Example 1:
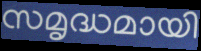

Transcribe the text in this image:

സമൃദ്ധമായി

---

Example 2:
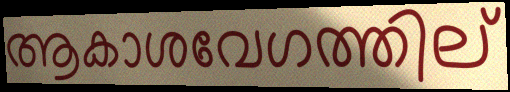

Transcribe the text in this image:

ആകാശവേഗത്തില്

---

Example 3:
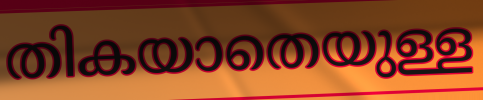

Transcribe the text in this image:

തികയാതെയുള്ള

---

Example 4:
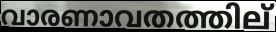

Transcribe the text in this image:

വാരണാവതത്തില്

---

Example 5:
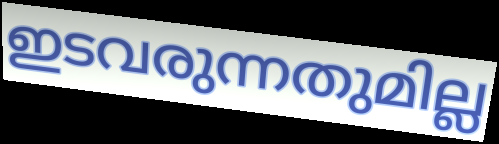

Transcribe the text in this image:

ഇടവരുന്നതുമില്ല